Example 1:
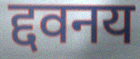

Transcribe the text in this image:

द्दवनय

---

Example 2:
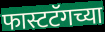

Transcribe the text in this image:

फास्टटॅगच्या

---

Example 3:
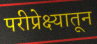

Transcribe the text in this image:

परीप्रेक्ष्यातून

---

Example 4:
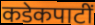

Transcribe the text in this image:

कडेकपाटीं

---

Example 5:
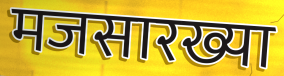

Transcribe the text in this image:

मजसारख्या